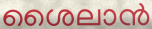
ശൈലാൻ